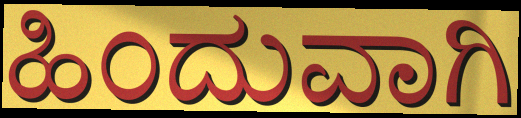
ಹಿಂದುವಾಗಿ